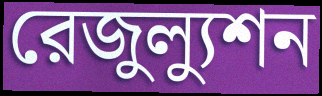
রেজুল্যুশন